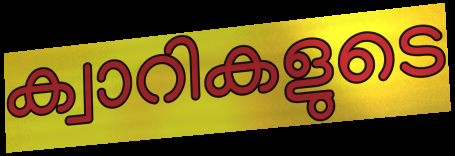
ക്വാറികളുടെ